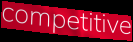
competitive